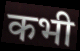
कभी